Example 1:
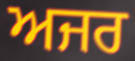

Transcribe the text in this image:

ਅਜਰ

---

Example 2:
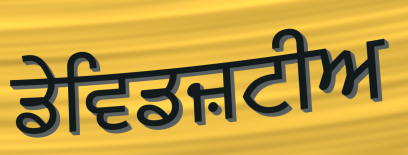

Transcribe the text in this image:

ਡੇਵਿਡਜ਼ਟੀਅ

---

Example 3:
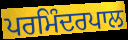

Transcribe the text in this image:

ਪਰਮਿੰਦਰਪਾਲ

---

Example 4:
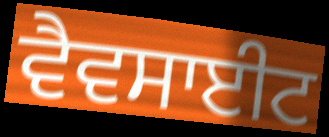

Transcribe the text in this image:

ਵੈਵਸਾਈਟ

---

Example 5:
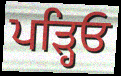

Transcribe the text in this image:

ਪੜ੍ਹਿਓ